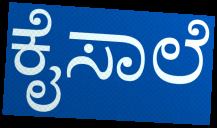
ಕೈಸಾಲೆ